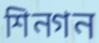
শিনগন